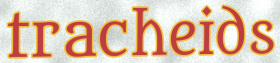
tracheids